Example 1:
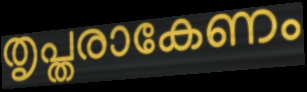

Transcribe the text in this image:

തൃപ്തരാകേണം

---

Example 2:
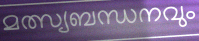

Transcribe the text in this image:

മത്സ്യബന്ധനവും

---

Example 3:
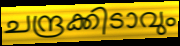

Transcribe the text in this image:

ചന്ദ്രക്കിടാവും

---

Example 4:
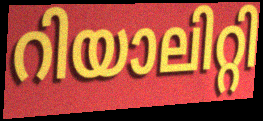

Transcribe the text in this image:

റിയാലിറ്റി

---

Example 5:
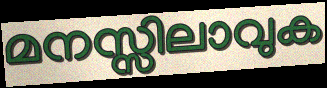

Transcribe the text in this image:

മനസ്സിലാവുക